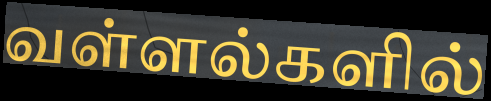
வள்ளல்களில்